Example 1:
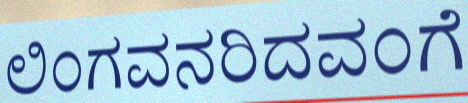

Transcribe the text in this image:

ಲಿಂಗವನರಿದವಂಗೆ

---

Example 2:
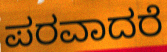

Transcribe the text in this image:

ಪರವಾದರೆ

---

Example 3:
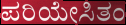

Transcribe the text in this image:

ಪರಿಯೇಸಿತಂ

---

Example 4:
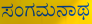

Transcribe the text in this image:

ಸಂಗಮನಾಥ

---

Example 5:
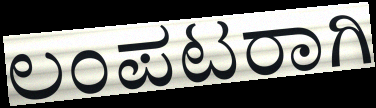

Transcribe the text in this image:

ಲಂಪಟರಾಗಿ